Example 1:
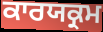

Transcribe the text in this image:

ਕਾਰਯਕ੍ਰਮ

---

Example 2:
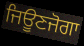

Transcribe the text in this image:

ਜਿਊਣਜੋਗਾ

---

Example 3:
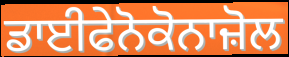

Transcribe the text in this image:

ਡਾਈਫੇਨੋਕੋਨਾਜ਼ੋਲ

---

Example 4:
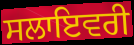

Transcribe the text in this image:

ਸਲਾਇਵਰੀ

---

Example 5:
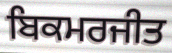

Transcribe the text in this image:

ਬਿਕਮਰਜੀਤ